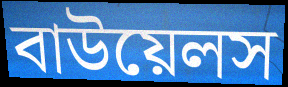
বাউয়েলস